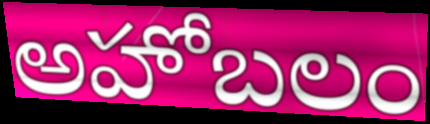
అహోబలం